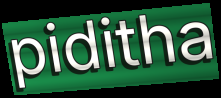
piditha